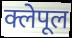
क्लेपूल